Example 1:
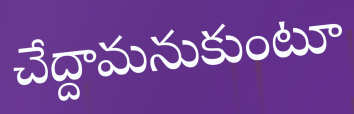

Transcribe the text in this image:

చేద్దామనుకుంటూ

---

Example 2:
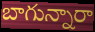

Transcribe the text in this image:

బాగున్నారా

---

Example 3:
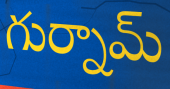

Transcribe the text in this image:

గుర్నామ్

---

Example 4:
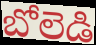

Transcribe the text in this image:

బోలెడి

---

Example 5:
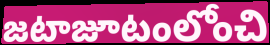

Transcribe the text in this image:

జటాజూటంలోంచి